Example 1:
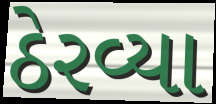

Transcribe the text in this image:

ઠેરવ્યા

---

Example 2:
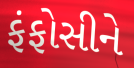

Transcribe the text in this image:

ફંફોસીને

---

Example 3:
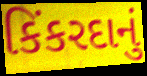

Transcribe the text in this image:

કિંકરદાનું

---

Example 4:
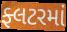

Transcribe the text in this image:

ફ્લટરમાં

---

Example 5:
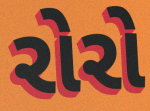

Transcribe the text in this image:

રોરો